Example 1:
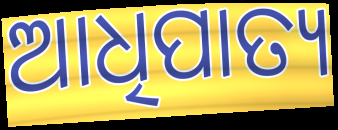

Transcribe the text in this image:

ଆଧିପାତ୍ୟ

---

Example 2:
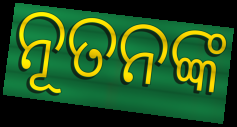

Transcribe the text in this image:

ନୂତନଙ୍କ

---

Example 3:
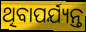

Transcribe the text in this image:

ଥିବାପର୍ଯ୍ୟନ୍ତ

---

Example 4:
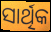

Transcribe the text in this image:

ସାର୍ଥିକ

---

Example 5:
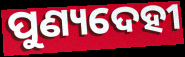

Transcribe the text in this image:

ପୁଣ୍ୟଦେହୀ